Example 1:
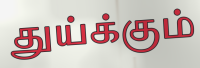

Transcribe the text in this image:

துய்க்கும்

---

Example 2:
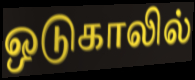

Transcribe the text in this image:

ஒடுகாலில்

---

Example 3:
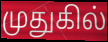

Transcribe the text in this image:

முதுகில்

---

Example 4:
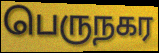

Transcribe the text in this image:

பெருநகர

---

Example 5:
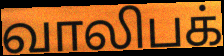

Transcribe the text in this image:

வாலிபக்